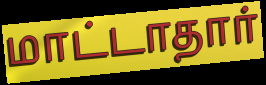
மாட்டாதார்